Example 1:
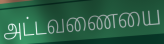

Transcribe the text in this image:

அட்டவணையை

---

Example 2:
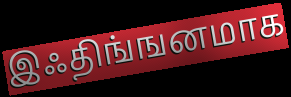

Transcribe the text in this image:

இஃதிங்ஙனமாக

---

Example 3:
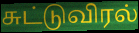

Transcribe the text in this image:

சுட்டுவிரல்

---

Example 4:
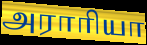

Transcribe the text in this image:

அராரியா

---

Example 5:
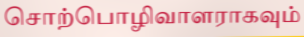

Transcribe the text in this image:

சொற்பொழிவாளராகவும்